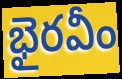
భైరవీం